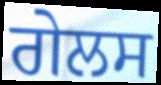
ਗੇਲਸ